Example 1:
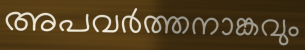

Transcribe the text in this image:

അപവർത്തനാങ്കവും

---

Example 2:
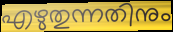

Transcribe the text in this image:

എഴുതുന്നതിനും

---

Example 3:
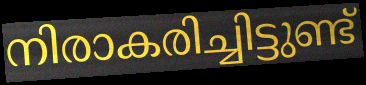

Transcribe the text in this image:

നിരാകരിച്ചിട്ടുണ്ട്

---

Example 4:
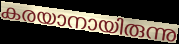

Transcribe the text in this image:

കരയാനായിരുന്നു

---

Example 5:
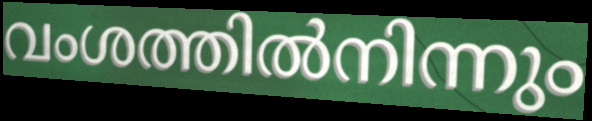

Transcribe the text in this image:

വംശത്തിൽനിന്നും